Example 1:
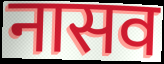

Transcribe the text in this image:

नासव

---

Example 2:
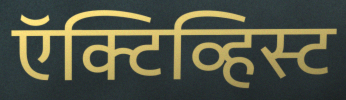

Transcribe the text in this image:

ऍक्टिव्हिस्ट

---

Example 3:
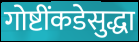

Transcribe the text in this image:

गोष्टींकडेसुद्धा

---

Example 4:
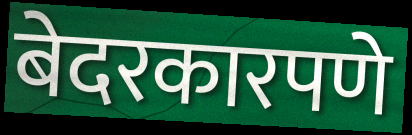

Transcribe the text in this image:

बेदरकारपणे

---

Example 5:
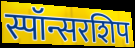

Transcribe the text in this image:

स्पॉन्सरशिप